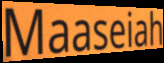
Maaseiah